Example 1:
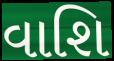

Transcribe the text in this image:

વાશિ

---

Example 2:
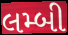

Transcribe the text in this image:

લમ્બી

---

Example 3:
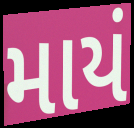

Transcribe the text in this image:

માયં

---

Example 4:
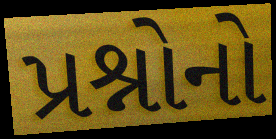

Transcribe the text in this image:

પ્રશ્નોનો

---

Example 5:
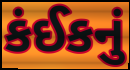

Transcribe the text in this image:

કંઈકનું